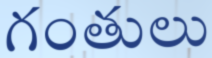
గంతులు